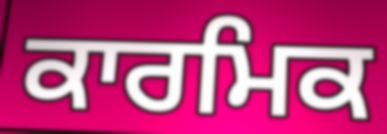
ਕਾਰਮਿਕ